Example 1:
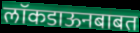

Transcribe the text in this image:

लॉकडाऊनबाबत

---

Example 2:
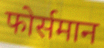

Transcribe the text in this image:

फोर्समान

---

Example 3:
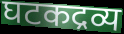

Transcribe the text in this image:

घटकद्रव्य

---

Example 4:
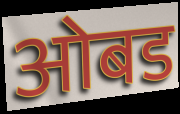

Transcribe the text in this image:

ओबड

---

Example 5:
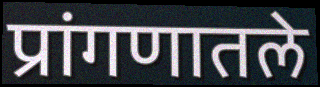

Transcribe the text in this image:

प्रांगणातले